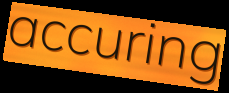
accuring